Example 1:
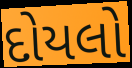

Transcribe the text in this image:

દોયલો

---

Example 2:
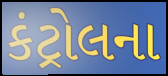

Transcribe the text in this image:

કંટ્રોલના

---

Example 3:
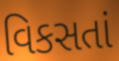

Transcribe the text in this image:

વિકસતાં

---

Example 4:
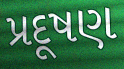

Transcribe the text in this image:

પ્રદૂષણ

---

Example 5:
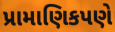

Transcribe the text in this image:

પ્રામાણિકપણે